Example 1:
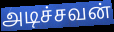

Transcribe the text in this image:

அடிச்சவன்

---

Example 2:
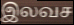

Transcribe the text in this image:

இலவச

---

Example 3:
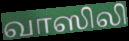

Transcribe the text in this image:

வாஸிலி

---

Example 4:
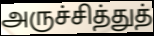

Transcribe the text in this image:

அருச்சித்துத்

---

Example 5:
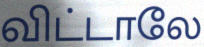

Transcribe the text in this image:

விட்டாலே